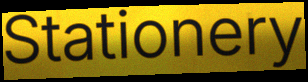
Stationery